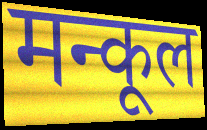
मन्कूल